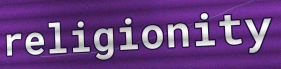
religionity